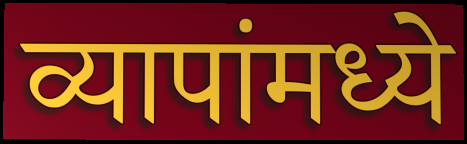
व्यापांमध्ये